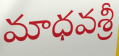
మాధవశ్రీ